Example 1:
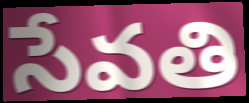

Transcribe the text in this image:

సేవతి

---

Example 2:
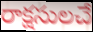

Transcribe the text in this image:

రాక్షసులచే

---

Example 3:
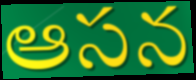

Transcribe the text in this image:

ఆసన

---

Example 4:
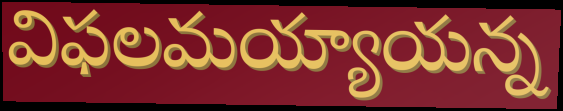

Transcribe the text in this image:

విఫలమయ్యాయన్న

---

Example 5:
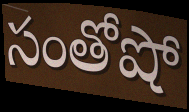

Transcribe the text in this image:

సంతోషో